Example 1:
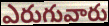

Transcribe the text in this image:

ఎరుగువారు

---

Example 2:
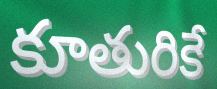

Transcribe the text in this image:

కూతురికే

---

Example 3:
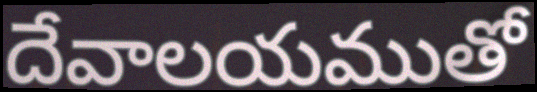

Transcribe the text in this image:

దేవాలయముతో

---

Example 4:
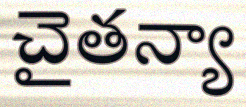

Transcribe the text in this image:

చైతన్యా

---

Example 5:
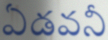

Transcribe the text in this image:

ఏడవనీ